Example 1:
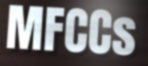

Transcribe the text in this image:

MFCCs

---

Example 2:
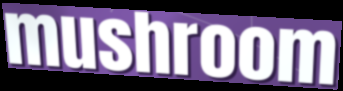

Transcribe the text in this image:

mushroom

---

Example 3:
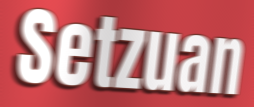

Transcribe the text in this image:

Setzuan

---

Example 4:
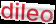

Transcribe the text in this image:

dileo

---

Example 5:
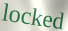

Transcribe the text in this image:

locked